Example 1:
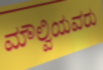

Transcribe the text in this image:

ಮೌಲ್ವಿಯವರು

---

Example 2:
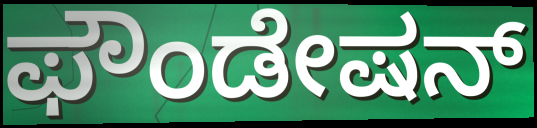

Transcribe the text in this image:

ಫೌಂಡೇಷನ್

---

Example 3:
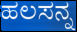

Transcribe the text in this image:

ಹಲಸನ್ನ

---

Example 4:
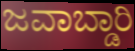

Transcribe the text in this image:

ಜವಾಬ್ಡಾರಿ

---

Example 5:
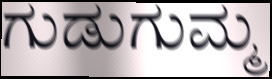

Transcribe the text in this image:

ಗುಡುಗುಮ್ಮ